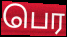
பெர